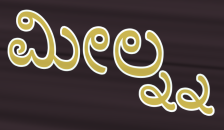
ಮೀಲ್ನ್ನ